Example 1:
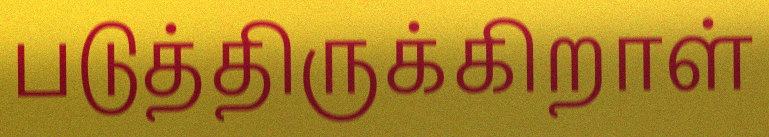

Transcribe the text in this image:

படுத்திருக்கிறாள்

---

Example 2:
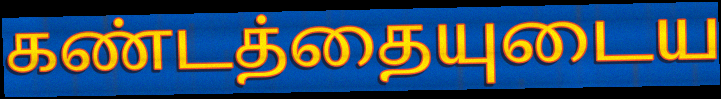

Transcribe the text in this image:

கண்டத்தையுடைய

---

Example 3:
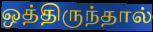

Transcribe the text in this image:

ஒத்திருந்தால்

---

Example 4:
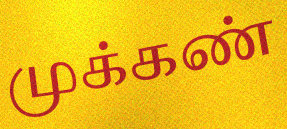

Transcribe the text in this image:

முக்கண்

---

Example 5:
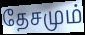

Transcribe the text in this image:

தேசமும்